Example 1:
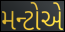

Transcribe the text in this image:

મન્ટોએ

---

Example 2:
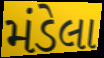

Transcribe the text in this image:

મંડેલા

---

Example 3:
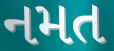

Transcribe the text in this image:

નમત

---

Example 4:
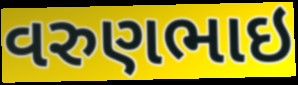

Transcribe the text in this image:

વરુણભાઇ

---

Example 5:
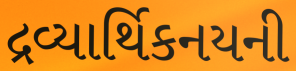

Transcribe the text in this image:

દ્રવ્યાર્થિકનયની